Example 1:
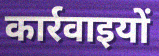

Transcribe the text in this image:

कार्रवाइयों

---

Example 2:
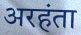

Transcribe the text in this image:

अरहंता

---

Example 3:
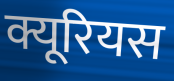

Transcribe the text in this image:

क्यूरियस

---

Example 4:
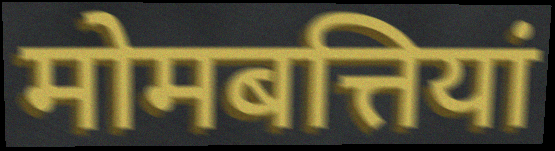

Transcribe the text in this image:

मोमबत्तियां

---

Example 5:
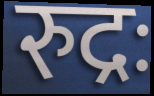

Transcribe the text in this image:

रुद्रः